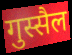
गुस्सैल